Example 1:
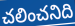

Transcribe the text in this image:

చలించనిది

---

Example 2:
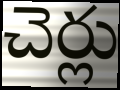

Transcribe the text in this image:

చెర్లు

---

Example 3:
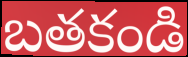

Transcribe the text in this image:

బతకండి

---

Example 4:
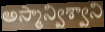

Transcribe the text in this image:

అస్మాన్విశ్వాని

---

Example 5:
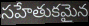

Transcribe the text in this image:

సహేతుకమైన